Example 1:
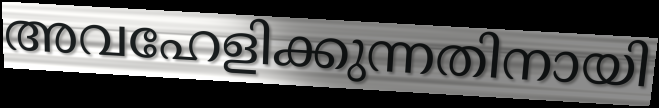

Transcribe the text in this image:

അവഹേളിക്കുന്നതിനായി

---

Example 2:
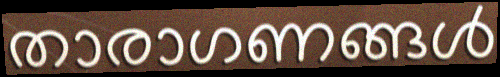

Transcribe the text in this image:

താരാഗണങ്ങൾ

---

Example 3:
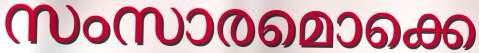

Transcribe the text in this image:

സംസാരമൊക്കെ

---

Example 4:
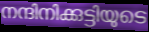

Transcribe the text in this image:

നന്ദിനിക്കുട്ടിയുടെ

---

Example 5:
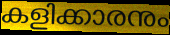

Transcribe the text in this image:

കളിക്കാരനും